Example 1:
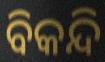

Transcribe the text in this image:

ବିକନ୍ଦି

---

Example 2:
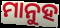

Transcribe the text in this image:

ମାନୁହ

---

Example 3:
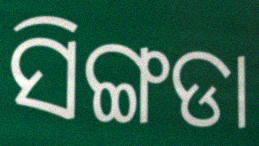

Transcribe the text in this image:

ସିଙ୍ଗଡା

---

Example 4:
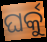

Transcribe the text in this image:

ଘର୍କୁ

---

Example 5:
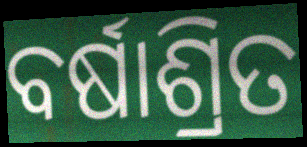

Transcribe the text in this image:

ବର୍ଷାଶ୍ରିତ